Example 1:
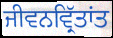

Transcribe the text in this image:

ਜੀਵਨਵ੍ਰਿੱਤਾਂਤ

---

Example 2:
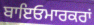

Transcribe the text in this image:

ਬਾਇਓਮਾਰਕਰਾਂ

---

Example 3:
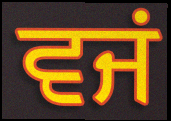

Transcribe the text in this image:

ਵਜਂ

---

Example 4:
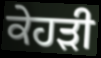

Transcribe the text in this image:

ਕੇਹੜੀ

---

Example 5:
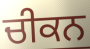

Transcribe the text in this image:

ਚੀਕਨ